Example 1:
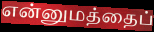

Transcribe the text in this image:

என்னுமத்தைப்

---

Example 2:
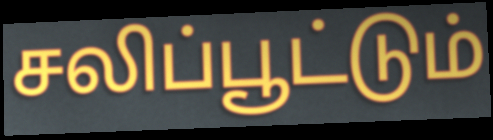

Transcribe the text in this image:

சலிப்பூட்டும்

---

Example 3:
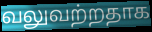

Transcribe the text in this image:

வலுவற்றதாக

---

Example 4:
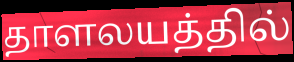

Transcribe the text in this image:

தாளலயத்தில்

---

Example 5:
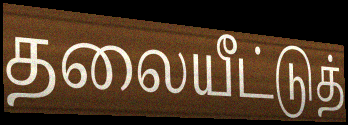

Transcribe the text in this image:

தலையீட்டுத்